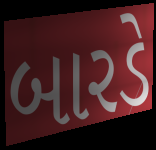
બારડે